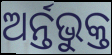
ଅର୍ନ୍ତଭୁକ୍ତ